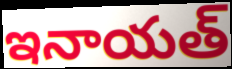
ఇనాయత్